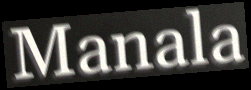
Manala